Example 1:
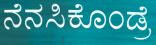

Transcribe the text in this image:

ನೆನಸಿಕೊಂಡ್ರೆ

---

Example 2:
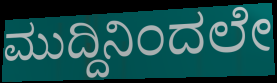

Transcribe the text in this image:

ಮುದ್ದಿನಿಂದಲೇ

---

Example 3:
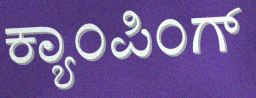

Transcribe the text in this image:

ಕ್ಯಾಂಪಿಂಗ್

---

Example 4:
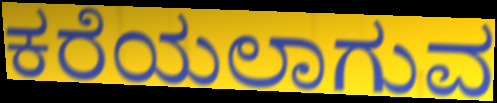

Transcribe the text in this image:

ಕರೆಯಲಾಗುವ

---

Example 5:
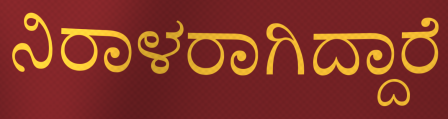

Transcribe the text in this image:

ನಿರಾಳರಾಗಿದ್ದಾರೆ